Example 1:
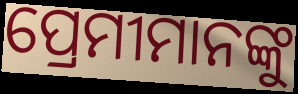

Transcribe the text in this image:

ପ୍ରେମୀମାନଙ୍କୁ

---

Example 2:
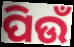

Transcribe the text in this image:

ପିଉଁ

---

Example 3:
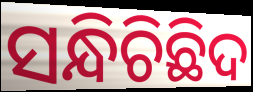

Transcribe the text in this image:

ସନ୍ଧିଚିଛିଦ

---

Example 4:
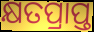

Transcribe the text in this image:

କ୍ଷତପ୍ରାପ୍ତ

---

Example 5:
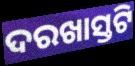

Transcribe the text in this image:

ଦରଖାସ୍ତଟି